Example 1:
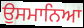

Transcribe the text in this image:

ਉਸਮਾਨਿਆ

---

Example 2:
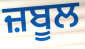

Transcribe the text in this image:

ਜ਼ਬੂਲ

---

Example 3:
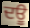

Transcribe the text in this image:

ਦਊ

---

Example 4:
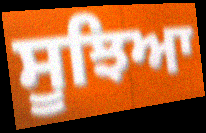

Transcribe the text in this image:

ਸੂਝਿਆ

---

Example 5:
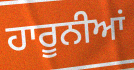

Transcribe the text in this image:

ਹਾਰੂਨੀਆਂ